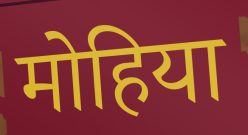
मोहिया